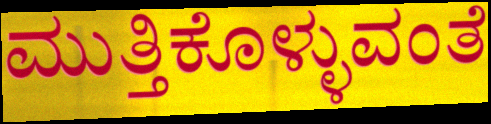
ಮುತ್ತಿಕೊಳ್ಳುವಂತೆ